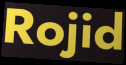
Rojid